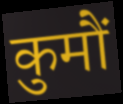
कुमौं